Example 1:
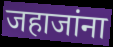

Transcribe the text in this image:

जहाजांना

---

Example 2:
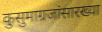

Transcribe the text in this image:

कुसुमाग्रजांसारख्या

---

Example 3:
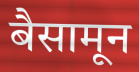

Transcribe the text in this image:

बैसामून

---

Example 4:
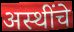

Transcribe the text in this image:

अस्थींचे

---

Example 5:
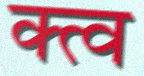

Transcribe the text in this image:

क्त्व